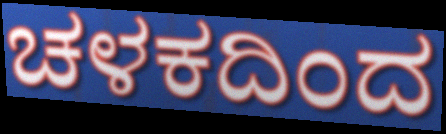
ಚಳಕದಿಂದ